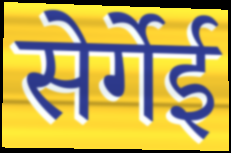
सेर्गेई